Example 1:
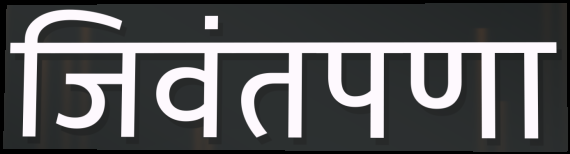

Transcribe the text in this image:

जिवंतपणा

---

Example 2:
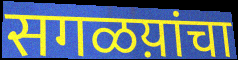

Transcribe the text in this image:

सगळय़ांचा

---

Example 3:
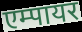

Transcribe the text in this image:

एम्पायर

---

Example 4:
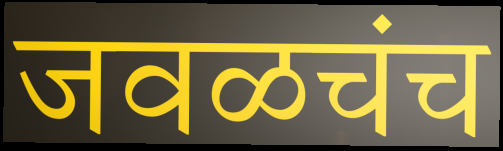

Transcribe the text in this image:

जवळचंच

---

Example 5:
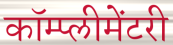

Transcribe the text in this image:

कॉम्प्लीमेंटरी